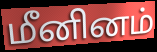
மீனினம்